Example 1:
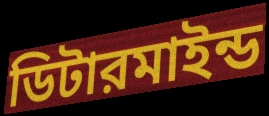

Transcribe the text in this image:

ডিটারমাইন্ড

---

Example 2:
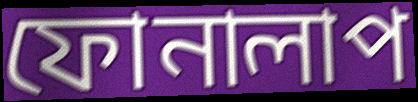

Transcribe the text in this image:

ফোনালাপ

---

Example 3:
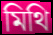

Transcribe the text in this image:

মিথি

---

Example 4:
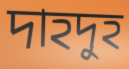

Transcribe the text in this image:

দাহদুহ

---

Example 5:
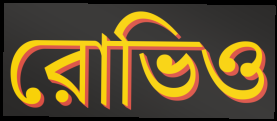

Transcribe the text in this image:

রোভিও